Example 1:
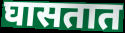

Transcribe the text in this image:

घासतात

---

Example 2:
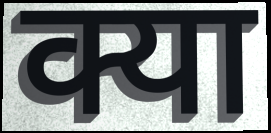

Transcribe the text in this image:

क्या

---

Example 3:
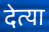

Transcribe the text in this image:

देत्या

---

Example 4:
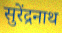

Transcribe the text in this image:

सुरेंद्रनाथ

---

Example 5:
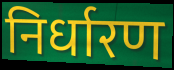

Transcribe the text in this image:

निर्धारण